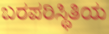
ಬರಪರಿಸ್ಥಿತಿಯ